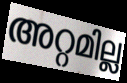
അറ്റമില്ല